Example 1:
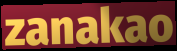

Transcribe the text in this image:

zanakao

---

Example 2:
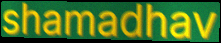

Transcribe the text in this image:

shamadhav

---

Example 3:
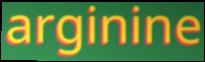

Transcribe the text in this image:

arginine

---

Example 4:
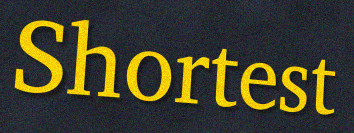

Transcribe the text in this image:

Shortest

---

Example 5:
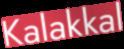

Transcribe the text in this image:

Kalakkal